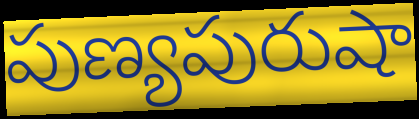
పుణ్యపురుషా